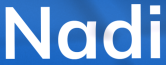
Nadi